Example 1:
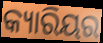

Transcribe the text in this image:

କ୍ୟାରିୟର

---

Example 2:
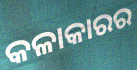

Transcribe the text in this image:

କଳାକାରର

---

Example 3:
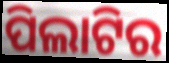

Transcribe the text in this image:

ପିଲାଟିର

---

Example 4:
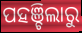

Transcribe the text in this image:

ପହଞ୍ଚିଲାରୁ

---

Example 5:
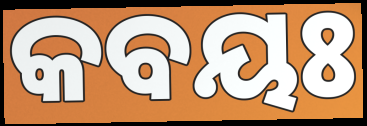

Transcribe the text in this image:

କବୟଃ